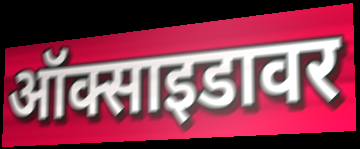
ऑक्साइडावर